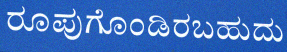
ರೂಪುಗೊಂಡಿರಬಹುದು